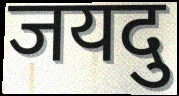
जयदु